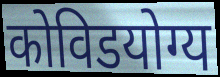
कोविडयोग्य